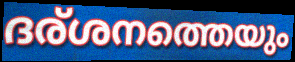
ദര്ശനത്തെയും